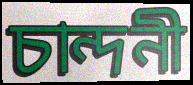
চান্দনী